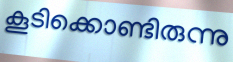
കൂടിക്കൊണ്ടിരുന്നു